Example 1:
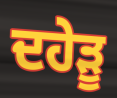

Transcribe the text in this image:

ਦਹੇੜੂ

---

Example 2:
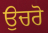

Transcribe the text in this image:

ਉਚਰੋ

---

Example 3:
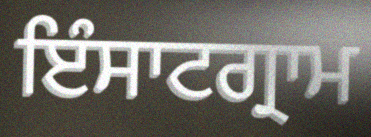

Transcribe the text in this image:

ਇੰਸਾਟਗ੍ਰਾਮ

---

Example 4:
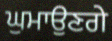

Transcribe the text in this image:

ਘੁਮਾਉਣਗੇ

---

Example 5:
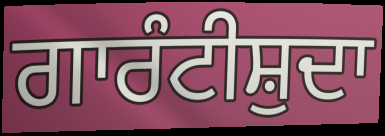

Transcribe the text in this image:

ਗਾਰੰਟੀਸ਼ੁਦਾ